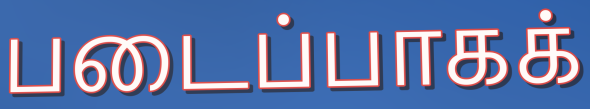
படைப்பாகக்